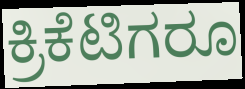
ಕ್ರಿಕೆಟಿಗರೂ